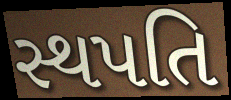
સ્થપતિ